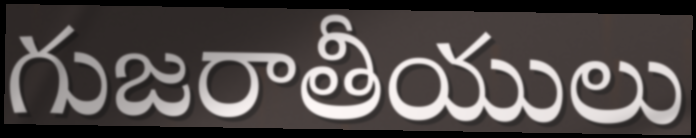
గుజరాతీయులు